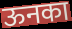
ऊनका